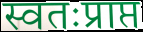
स्वतःप्राप्त